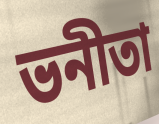
ভনীতা